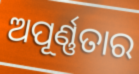
ଅପୂର୍ଣ୍ଣତାର